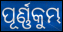
ପୂର୍ଣ୍ଣକୁମ୍ଭ